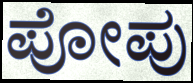
ಪೋಪು